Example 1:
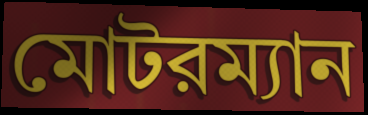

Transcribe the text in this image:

মোটরম্যান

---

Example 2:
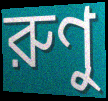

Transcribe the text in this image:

রুণু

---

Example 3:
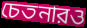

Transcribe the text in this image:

চেতনারও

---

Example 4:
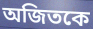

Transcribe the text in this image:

অজিতকে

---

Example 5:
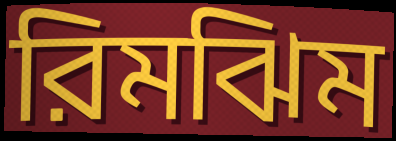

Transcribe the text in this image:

রিমঝিম